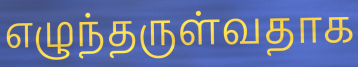
எழுந்தருள்வதாக